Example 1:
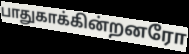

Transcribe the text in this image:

பாதுகாக்கின்றனரோ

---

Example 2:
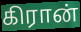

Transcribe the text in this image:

கிரான்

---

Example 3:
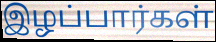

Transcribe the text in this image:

இழப்பார்கள்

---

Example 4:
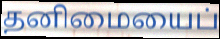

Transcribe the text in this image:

தனிமையைப்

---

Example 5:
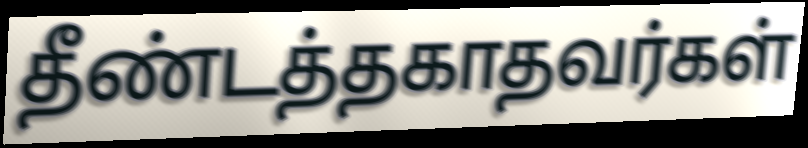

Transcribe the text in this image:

தீண்டத்தகாதவர்கள்